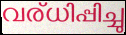
വര്ധിപ്പിച്ചു